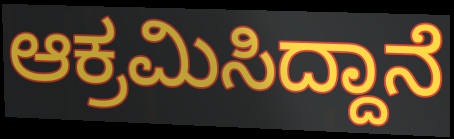
ಆಕ್ರಮಿಸಿದ್ದಾನೆ